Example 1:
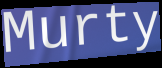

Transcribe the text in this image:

Murty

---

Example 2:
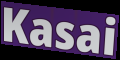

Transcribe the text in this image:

Kasai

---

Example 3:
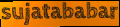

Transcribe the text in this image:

sujatababar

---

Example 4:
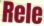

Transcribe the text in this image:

Rele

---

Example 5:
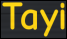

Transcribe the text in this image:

Tayi